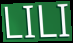
LILI